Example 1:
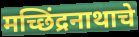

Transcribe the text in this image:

मच्छिंद्रनाथाचे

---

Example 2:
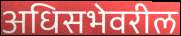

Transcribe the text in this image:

अधिसभेवरील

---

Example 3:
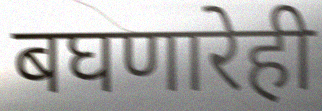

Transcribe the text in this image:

बघणारेही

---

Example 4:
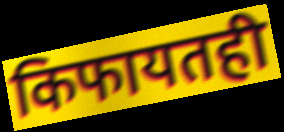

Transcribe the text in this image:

किफायतही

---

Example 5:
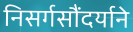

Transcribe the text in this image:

निसर्गसौंदर्याने